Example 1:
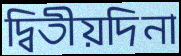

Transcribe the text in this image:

দ্বিতীয়দিনা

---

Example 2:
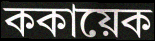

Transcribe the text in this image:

ককায়েক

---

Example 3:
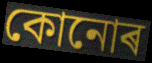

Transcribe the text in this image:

কোনোৰ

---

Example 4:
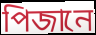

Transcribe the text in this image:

পিজানে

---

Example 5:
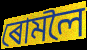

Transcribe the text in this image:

ৰোমলৈ